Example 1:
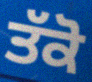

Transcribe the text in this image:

ਤੱਕੋ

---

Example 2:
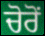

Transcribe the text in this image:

ਚੋਰੋਂ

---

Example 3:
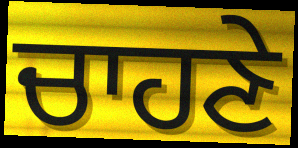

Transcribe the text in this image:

ਚਾਹਣੇ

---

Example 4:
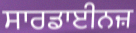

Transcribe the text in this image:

ਸਾਰਡਾਈਨਜ਼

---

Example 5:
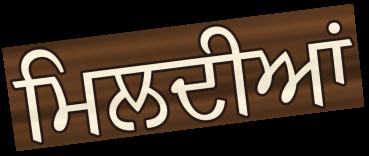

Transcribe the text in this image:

ਮਿਲਦੀਆਂ